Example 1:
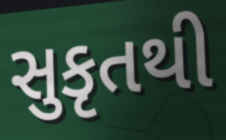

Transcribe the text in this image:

સુકૃતથી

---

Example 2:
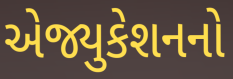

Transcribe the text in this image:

એજ્યુકેશનનો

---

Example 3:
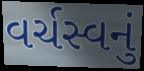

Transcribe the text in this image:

વર્ચસ્વનું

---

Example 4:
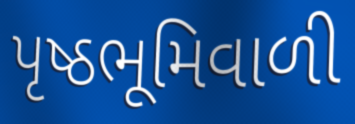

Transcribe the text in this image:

પૃષ્ઠભૂમિવાળી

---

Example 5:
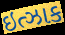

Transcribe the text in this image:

ઇત્ઝાક